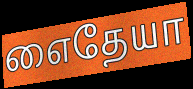
எைதேயா